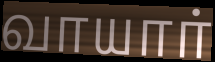
வாயார்